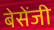
बेसेंजी